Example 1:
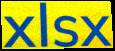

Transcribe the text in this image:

xlsx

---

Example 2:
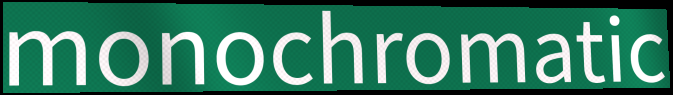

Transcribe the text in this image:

monochromatic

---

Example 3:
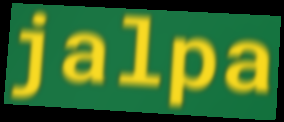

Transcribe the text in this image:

jalpa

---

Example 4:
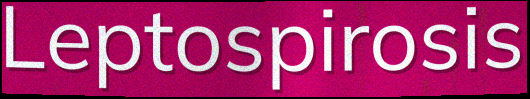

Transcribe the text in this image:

Leptospirosis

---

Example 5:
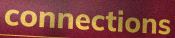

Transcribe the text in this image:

connections